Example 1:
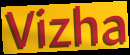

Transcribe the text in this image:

Vizha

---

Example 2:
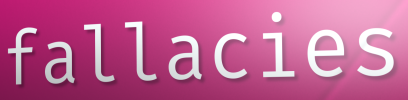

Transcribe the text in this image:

fallacies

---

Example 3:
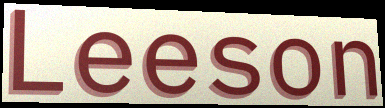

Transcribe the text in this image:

Leeson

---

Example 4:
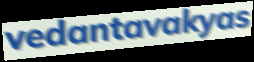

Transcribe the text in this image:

vedantavakyas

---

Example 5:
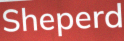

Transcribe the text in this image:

Sheperd